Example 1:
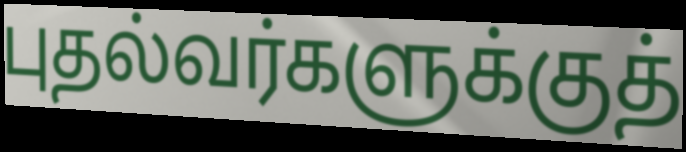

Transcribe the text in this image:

புதல்வர்களுக்குத்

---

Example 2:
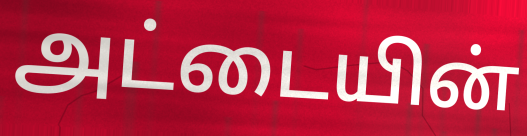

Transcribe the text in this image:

அட்டையின்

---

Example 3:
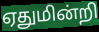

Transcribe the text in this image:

ஏதுமின்றி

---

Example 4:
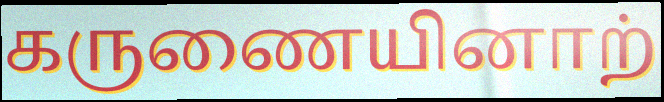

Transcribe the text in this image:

கருணையினாற்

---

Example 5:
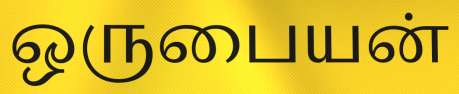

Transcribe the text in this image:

ஒருபையன்